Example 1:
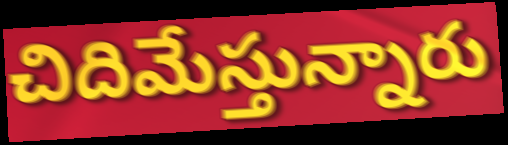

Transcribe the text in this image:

చిదిమేస్తున్నారు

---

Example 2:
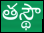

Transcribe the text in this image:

తస్థౌ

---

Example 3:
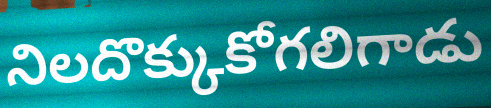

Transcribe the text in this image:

నిలదొక్కుకోగలిగాడు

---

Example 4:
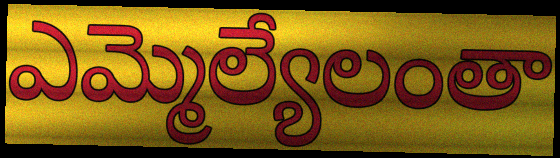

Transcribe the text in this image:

ఎమ్మెల్యేలంతా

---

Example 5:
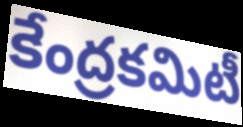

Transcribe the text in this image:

కేంద్రకమిటీ